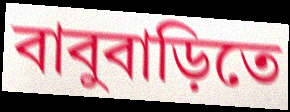
বাবুবাড়িতে